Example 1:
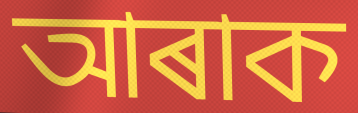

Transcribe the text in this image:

আৰাক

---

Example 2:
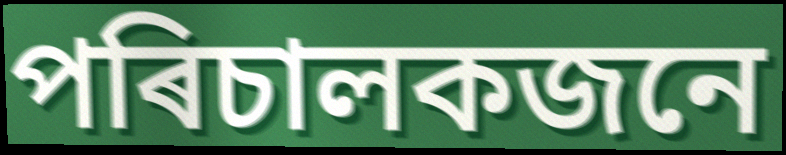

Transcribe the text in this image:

পৰিচালকজনে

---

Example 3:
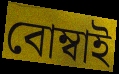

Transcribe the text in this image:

বোম্বাই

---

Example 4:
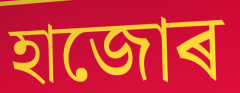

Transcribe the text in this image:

হাজোৰ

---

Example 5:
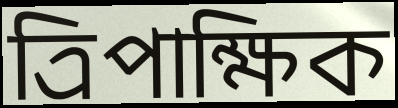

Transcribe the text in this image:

ত্ৰিপাক্ষিক